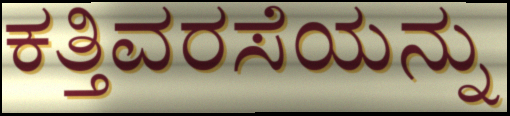
ಕತ್ತಿವರಸೆಯನ್ನು